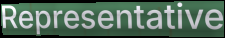
Representative